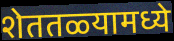
शेततळ्यामध्ये